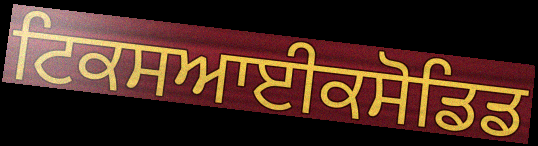
ਟਿਕਸਆਈਕਸੋਡਿਡ